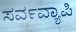
ಸರ್ವವ್ಯಾಪಿ